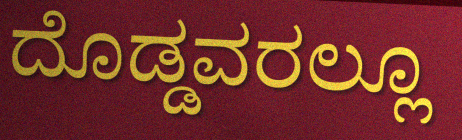
ದೊಡ್ಡವರಲ್ಲೂ